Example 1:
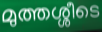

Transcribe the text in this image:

മുത്തശ്ശീടെ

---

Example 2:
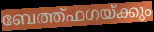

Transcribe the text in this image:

ബേത്ത്ഫഗയ്ക്കും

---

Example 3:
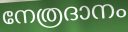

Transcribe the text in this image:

നേത്രദാനം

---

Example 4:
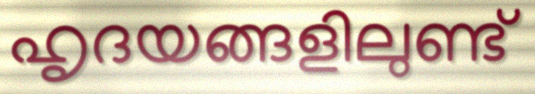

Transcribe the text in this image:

ഹൃദയങ്ങളിലുണ്ട്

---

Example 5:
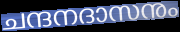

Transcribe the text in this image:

ചന്ദനദാസനും